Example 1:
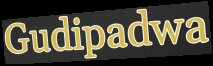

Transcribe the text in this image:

Gudipadwa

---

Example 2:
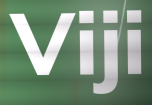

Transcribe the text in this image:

Viji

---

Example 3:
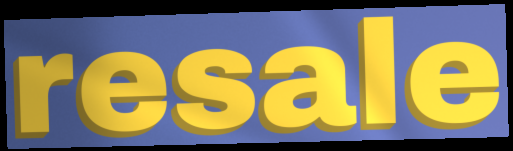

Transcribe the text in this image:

resale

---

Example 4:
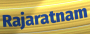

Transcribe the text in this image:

Rajaratnam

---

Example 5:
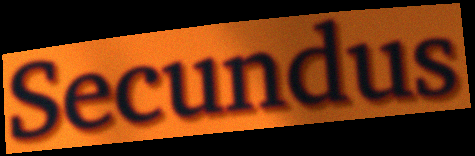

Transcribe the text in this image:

Secundus